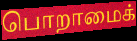
பொறாமைக்